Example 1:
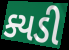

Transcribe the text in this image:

ક્યડી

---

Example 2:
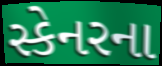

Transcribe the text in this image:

સ્કેનરના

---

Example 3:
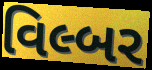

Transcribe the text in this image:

વિલ્બર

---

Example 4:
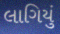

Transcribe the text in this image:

લાગિયું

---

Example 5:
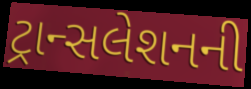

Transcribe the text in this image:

ટ્રાન્સલેશનની